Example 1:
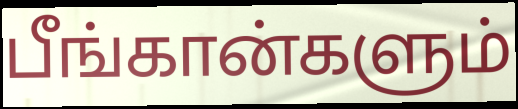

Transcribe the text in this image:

பீங்கான்களும்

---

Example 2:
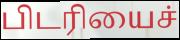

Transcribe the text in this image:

பிடரியைச்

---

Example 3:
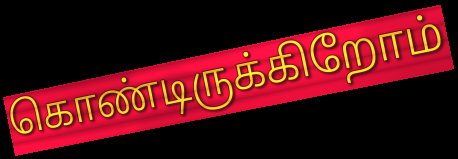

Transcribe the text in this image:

கொண்டிருக்கிறோம்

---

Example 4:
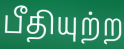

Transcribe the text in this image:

பீதியுற்ற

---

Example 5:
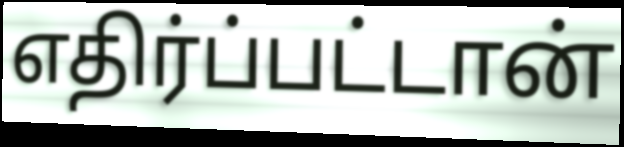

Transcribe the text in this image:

எதிர்ப்பட்டான்